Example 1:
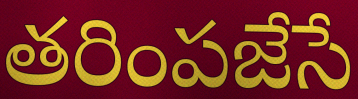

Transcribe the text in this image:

తరింపజేసే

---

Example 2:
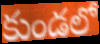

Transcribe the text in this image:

కుండలో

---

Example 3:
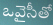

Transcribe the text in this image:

ఒవైసీతో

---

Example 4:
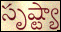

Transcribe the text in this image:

సృష్ట్యా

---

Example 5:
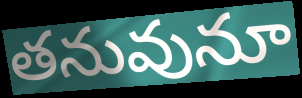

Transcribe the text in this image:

తనువునూ